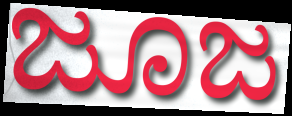
ಜೂಜ